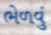
ભેળવું